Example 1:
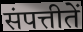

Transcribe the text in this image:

संपत्तीतें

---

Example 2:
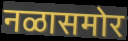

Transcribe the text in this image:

नळासमोर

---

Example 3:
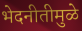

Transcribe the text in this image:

भेदनीतीमुळे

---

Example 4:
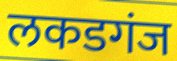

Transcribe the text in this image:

लकडगंज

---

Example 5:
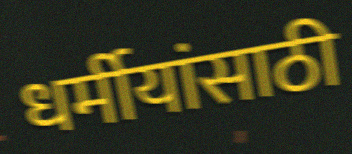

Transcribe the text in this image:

धर्मीयांसाठी